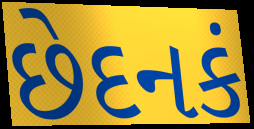
છેદનકં